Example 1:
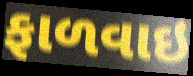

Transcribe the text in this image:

ફાળવાઇ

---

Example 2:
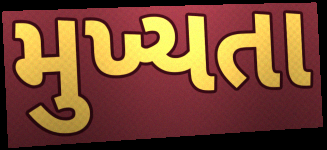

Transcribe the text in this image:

મુખ્યતા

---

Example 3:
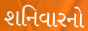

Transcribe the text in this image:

શનિવારનો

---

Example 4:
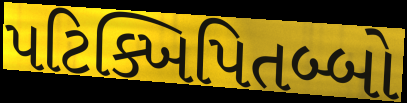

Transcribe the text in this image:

પટિક્ખિપિતબ્બો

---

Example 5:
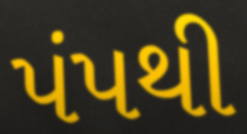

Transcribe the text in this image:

પંપથી